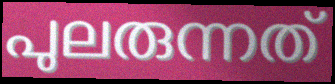
പുലരുന്നത്